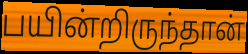
பயின்றிருந்தான்